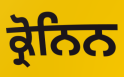
ਕ੍ਰੋਨਿਨ